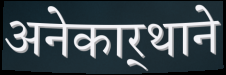
अनेकार्थाने